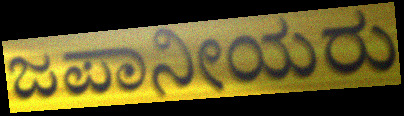
ಜಪಾನೀಯರು